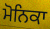
ਮੋਨਿਕਾ